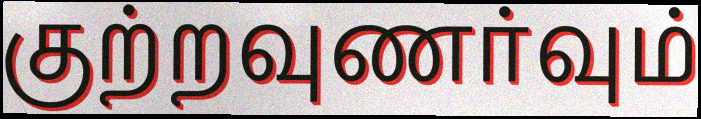
குற்றவுணர்வும்